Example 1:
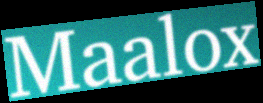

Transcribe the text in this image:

Maalox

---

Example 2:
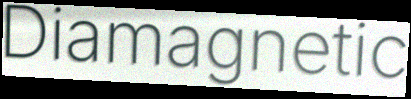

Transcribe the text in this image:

Diamagnetic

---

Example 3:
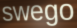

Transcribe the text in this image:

swego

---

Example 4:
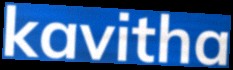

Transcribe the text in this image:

kavitha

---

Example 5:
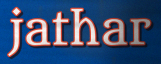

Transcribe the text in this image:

jathar